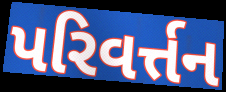
પરિવર્ત્તન